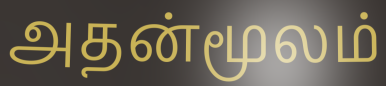
அதன்மூலம்